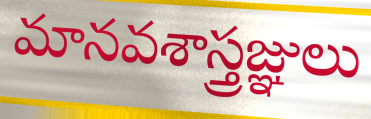
మానవశాస్త్రజ్ఞులు